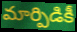
మార్పిడికీ